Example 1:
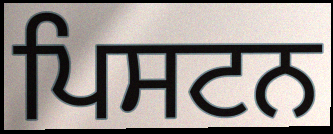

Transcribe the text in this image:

ਪਿਸਟਨ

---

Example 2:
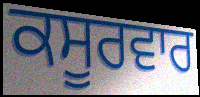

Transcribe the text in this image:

ਕਸੂਰਵਾਰ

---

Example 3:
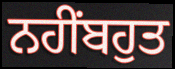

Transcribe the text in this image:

ਨਹੀਂਬਹੁਤ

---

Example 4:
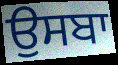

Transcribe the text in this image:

ਉਸਬਾ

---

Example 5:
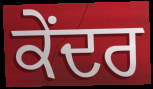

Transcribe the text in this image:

ਕੇੰਦਰ